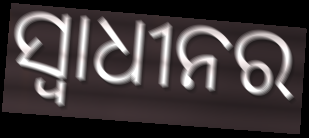
ସ୍ୱାଧୀନର